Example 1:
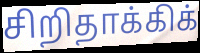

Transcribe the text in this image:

சிறிதாக்கிக்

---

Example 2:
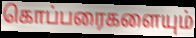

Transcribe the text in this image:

கொப்பரைகளையும்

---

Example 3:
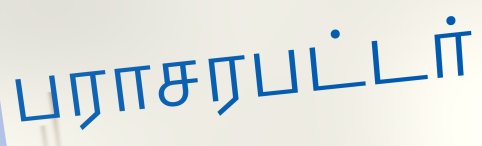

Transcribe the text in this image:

பராசரபட்டர்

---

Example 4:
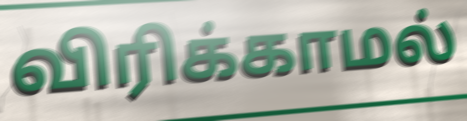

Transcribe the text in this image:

விரிக்காமல்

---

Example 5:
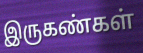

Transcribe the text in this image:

இருகண்கள்